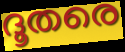
ദൂതരെ